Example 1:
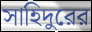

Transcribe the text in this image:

সাহিদুরের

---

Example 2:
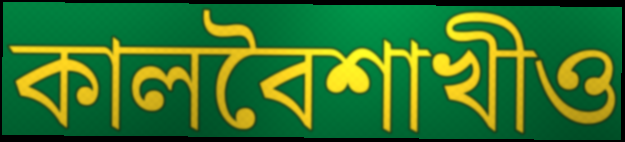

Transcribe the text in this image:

কালবৈশাখীও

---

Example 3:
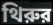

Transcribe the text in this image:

থিরুর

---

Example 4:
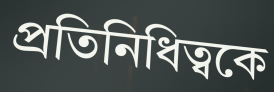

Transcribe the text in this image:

প্রতিনিধিত্বকে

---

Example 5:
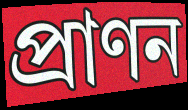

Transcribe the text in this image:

প্রাণন